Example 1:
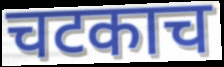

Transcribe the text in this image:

चटकाच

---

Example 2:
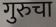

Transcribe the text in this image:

गुरुचा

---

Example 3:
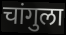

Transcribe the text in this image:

चांगुला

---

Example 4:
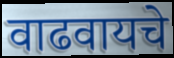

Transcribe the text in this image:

वाढवायचे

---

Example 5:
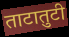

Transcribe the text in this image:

ताटातुटी